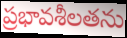
ప్రభావశీలతను